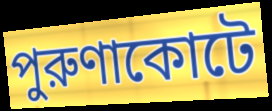
পুরুণাকোটে